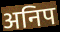
अनिप